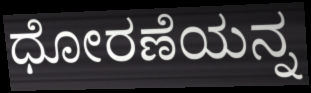
ಧೋರಣೆಯನ್ನ